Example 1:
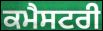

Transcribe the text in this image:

ਕਮੈਸਟਰੀ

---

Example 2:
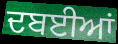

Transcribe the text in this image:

ਦਬਈਆਂ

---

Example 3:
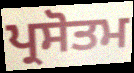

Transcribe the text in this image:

ਪ੍ਰਸੋਤਮ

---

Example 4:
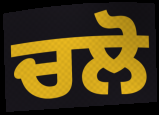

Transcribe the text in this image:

ਚਲੋ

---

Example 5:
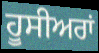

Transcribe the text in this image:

ਹੂਸੀਅਰਾਂ